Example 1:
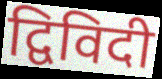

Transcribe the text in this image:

द्विविदी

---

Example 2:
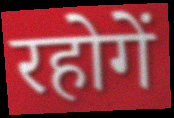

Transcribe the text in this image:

रहोगें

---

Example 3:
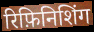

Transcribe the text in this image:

रिफ़िनिशिंग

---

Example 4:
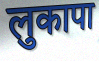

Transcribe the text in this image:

लुकापा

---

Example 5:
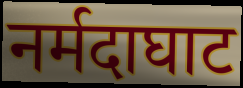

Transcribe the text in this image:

नर्मदाघाट